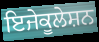
ਇਜੇਕੂਲੇਸ਼ਨ